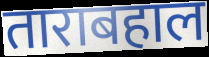
ताराबहाल